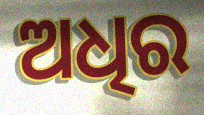
ଅଧିର